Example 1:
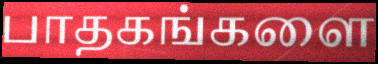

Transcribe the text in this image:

பாதகங்களை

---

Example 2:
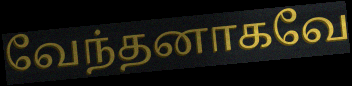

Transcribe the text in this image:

வேந்தனாகவே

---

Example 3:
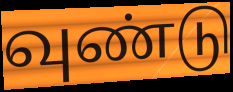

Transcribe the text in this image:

வுண்டு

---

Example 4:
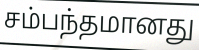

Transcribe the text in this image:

சம்பந்தமானது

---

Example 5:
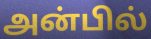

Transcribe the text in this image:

அன்பில்